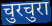
चुरचुरा